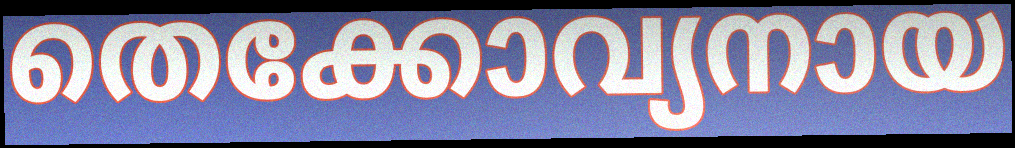
തെക്കോവ്യനായ